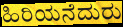
ಹಿರಿಯನೆದುರು